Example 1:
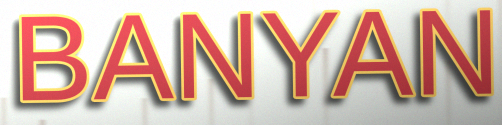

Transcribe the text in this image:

BANYAN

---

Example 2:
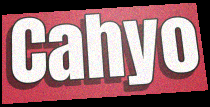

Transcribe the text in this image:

Cahyo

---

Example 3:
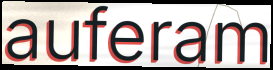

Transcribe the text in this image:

auferam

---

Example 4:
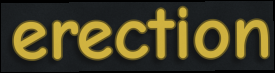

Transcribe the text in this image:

erection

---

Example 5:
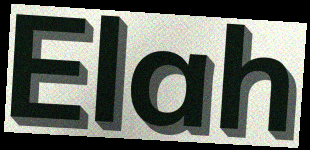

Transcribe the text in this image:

Elah